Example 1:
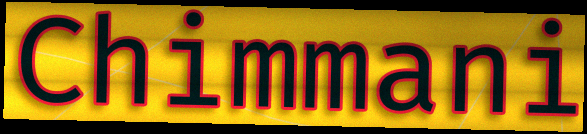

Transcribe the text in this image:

Chimmani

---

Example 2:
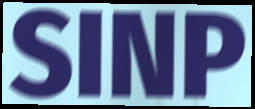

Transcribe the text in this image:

SINP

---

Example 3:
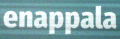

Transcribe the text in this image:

enappala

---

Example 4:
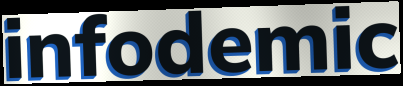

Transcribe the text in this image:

infodemic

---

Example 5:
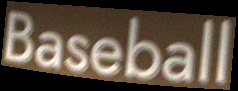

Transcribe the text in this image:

Baseball